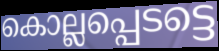
കൊല്ലപ്പെടട്ടെ